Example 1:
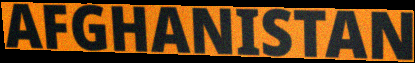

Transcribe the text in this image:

AFGHANISTAN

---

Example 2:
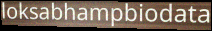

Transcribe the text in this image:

loksabhampbiodata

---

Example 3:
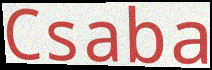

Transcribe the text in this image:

Csaba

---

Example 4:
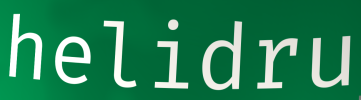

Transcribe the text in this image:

helidru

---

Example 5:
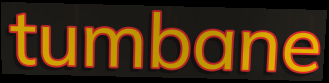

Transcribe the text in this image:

tumbane